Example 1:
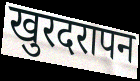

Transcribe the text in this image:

खुरदरापन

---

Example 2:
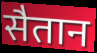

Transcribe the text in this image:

सैतान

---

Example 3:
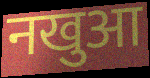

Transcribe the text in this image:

नखुआ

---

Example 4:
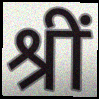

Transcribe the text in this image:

श्रीं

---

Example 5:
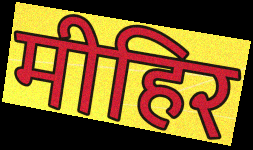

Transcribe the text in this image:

मीहिर